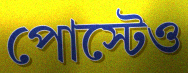
পোস্টেও